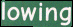
lowing